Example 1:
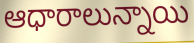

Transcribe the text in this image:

ఆధారాలున్నాయి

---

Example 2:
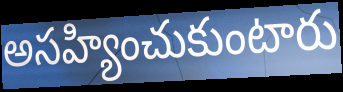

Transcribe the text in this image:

అసహ్యించుకుంటారు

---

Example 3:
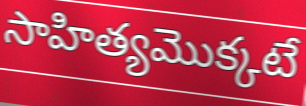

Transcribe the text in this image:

సాహిత్యమొక్కటే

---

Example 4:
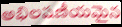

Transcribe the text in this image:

అభిలషణీయమైన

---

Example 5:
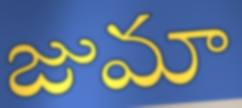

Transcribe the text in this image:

జుమా